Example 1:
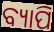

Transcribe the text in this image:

ବ୍ୟାପି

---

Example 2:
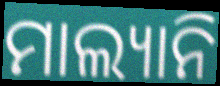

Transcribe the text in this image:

ମାଲ୍ୟାନି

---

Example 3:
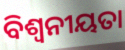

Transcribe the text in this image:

ବିଶ୍ୱନୀୟତା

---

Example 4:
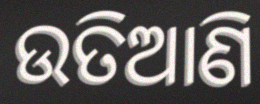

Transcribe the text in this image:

ଉତିଆଣି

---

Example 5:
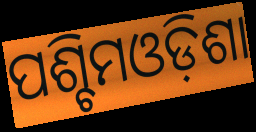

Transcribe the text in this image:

ପଶ୍ଚିମଓଡ଼ିଶା